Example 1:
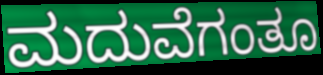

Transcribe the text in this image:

ಮದುವೆಗಂತೂ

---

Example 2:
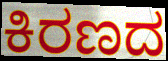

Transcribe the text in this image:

ಕಿರಣದ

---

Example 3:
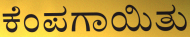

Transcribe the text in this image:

ಕೆಂಪಗಾಯಿತು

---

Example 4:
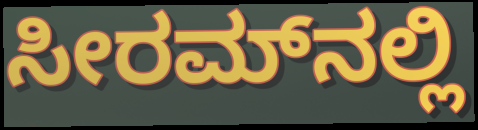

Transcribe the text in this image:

ಸೀರಮ್‌ನಲ್ಲಿ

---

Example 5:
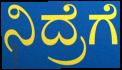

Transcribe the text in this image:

ನಿದ್ರೆಗೆ